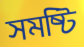
সমষ্টি